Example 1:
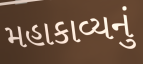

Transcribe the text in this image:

મહાકાવ્યનું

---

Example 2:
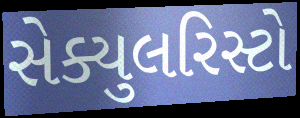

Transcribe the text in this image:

સેક્યુલરિસ્ટો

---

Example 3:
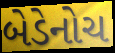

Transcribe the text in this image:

બેડેનોચ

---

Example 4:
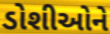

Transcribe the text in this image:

ડોશીઓને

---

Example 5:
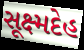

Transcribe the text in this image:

સૂક્ષ્મદેહ